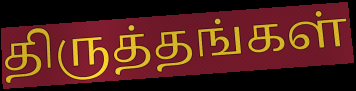
திருத்தங்கள்